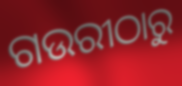
ଗଉରୀଠାରୁ